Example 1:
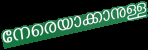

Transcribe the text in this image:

നേരെയാക്കാനുള്ള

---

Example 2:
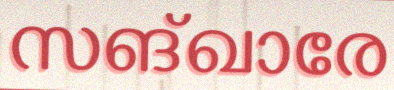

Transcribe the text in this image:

സങ്ഖാരേ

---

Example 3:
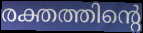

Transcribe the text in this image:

രക്തത്തിന്റെ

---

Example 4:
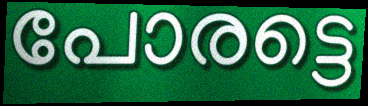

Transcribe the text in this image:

പോരട്ടെ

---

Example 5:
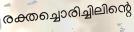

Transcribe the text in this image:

രക്തച്ചൊരിച്ചിലിന്റെ